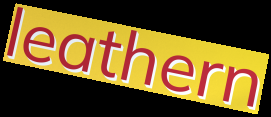
leathern